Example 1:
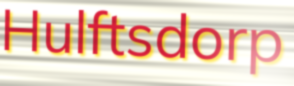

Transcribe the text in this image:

Hulftsdorp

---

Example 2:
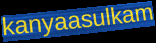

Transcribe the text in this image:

kanyaasulkam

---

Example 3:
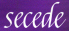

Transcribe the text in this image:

secede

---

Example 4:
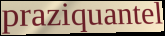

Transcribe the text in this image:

praziquantel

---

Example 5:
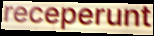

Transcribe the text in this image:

receperunt